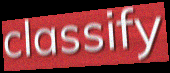
classify